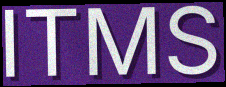
ITMS